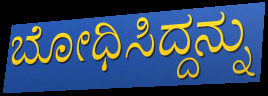
ಬೋಧಿಸಿದ್ದನ್ನು